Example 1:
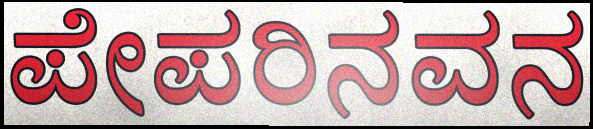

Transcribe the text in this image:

ಪೇಪರಿನವನ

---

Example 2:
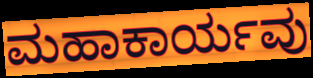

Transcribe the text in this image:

ಮಹಾಕಾರ್ಯವು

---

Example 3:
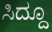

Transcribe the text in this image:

ಸಿದ್ದೂ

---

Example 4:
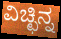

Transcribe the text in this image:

ವಿಚ್ಛಿನ್ನ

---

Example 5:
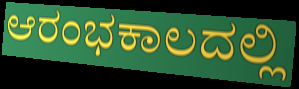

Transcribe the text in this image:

ಆರಂಭಕಾಲದಲ್ಲಿ